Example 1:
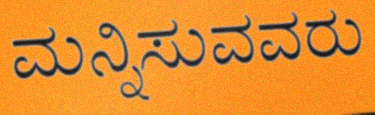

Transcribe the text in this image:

ಮನ್ನಿಸುವವರು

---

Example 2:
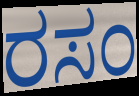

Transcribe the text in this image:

ರಸಂ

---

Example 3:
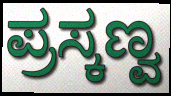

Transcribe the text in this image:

ಪ್ರಸ್ಕಣ್ವ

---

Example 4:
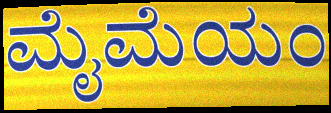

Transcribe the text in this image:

ಮೈಮೆಯಂ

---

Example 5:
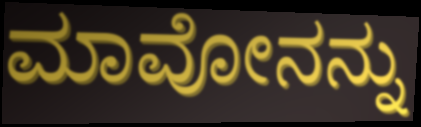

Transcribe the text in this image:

ಮಾವೋನನ್ನು